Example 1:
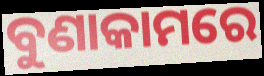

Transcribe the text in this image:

ବୁଣାକାମରେ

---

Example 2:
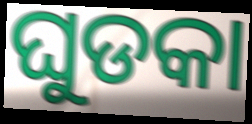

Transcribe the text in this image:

ଘୁଡକା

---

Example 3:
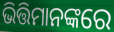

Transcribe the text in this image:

ଭିତ୍ତିମାନଙ୍କରେ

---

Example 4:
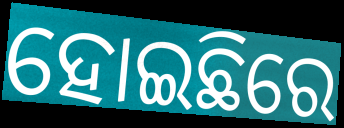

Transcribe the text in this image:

ହୋଇଛିରେ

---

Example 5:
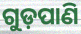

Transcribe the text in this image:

ଗୁଡ଼ପାଣି